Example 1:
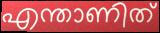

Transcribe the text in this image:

എന്താണിത്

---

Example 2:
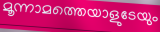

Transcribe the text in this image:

മൂന്നാമത്തെയാളുടേയും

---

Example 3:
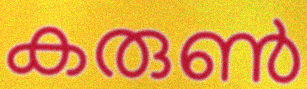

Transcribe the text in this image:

കരുൺ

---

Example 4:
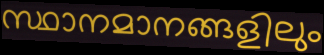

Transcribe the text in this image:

സ്ഥാനമാനങ്ങളിലും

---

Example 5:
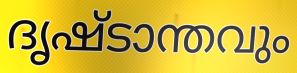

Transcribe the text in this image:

ദൃഷ്ടാന്തവും